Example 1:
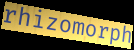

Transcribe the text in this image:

rhizomorph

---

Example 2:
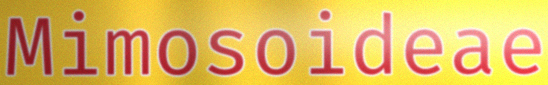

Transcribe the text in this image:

Mimosoideae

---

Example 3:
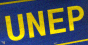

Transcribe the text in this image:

UNEP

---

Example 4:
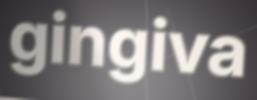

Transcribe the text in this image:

gingiva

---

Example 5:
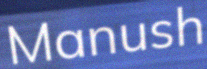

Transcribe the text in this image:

Manush